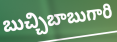
బుచ్చిబాబుగారి